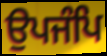
ਉਪਜੰਪਿ